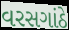
વરસગાંઠે